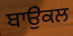
ਬਾਉਕਲ